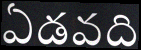
ఏడవది